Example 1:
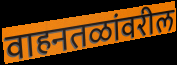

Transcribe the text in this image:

वाहनतळांवरील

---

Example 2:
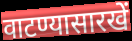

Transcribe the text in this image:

वाटण्यासारखें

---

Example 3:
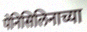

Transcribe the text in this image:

पेनिसिलिनाच्या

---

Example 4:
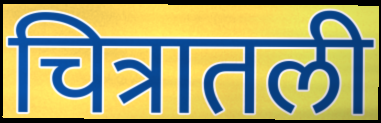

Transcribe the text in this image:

चित्रातली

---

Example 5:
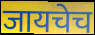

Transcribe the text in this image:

जायचेच